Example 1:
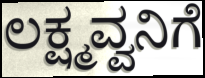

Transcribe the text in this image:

ಲಕ್ಷ್ಮವ್ವನಿಗೆ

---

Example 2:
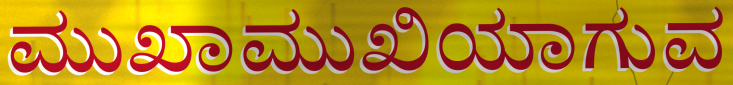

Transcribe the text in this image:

ಮುಖಾಮುಖಿಯಾಗುವ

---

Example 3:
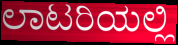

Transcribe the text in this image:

ಲಾಟರಿಯಲ್ಲಿ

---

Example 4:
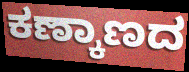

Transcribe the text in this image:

ಕಣ್ಕಾಣದ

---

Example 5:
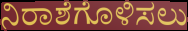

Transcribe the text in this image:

ನಿರಾಶೆಗೊಳಿಸಲು